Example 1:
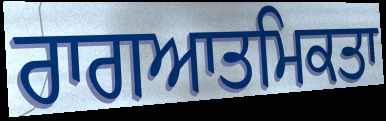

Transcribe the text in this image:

ਰਾਗਆਤਮਿਕਤਾ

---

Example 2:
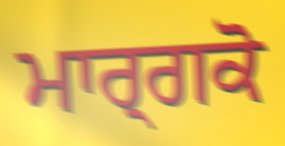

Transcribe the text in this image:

ਮਾਰ੍ਗਕੋ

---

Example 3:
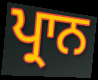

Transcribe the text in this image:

ਪ੍ਰਾਨ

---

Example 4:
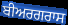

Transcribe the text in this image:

ਬੀਅਰਗਰਾਸ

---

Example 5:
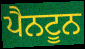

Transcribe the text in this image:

ਪੈਨਟੂਨ